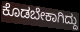
ಕೊಡಬೇಕಾಗಿದ್ದು